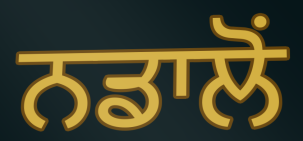
ਨਡਾਲੋਂ